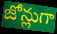
జోన్లుగా